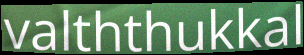
valththukkal